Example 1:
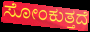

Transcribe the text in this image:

ಸೋಂಕುತ್ತದೆ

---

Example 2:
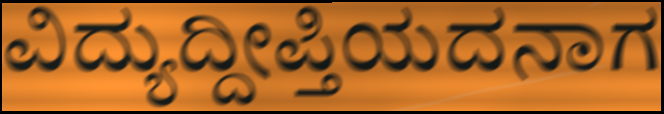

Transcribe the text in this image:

ವಿದ್ಯುದ್ದೀಪ್ತಿಯದನಾಗ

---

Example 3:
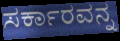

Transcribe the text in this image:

ಸರ್ಕಾರವನ್ನ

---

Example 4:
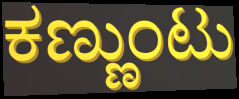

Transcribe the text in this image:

ಕಣ್ಣುಂಟು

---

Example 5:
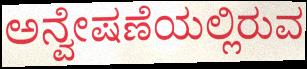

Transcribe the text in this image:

ಅನ್ವೇಷಣೆಯಲ್ಲಿರುವ